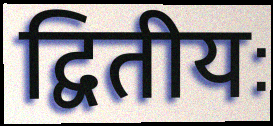
द्वितीयः